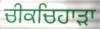
ਚੀਕਚਿਹਾੜਾ